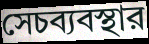
সেচব্যবস্থার